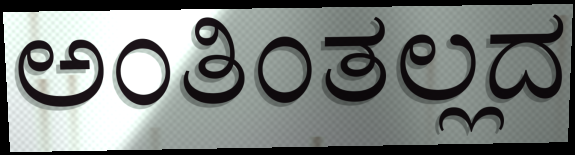
ಅಂತಿಂತಲ್ಲದ